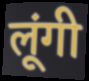
लूंगी